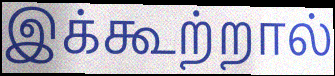
இக்கூற்றால்